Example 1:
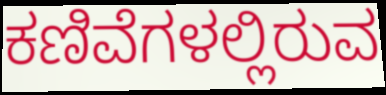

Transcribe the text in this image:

ಕಣಿವೆಗಳಲ್ಲಿರುವ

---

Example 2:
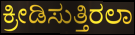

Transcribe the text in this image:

ಕ್ರೀಡಿಸುತ್ತಿರಲಾ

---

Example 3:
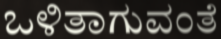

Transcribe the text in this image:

ಒಳಿತಾಗುವಂತೆ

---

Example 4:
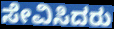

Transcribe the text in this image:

ಸೇವಿಸಿದರು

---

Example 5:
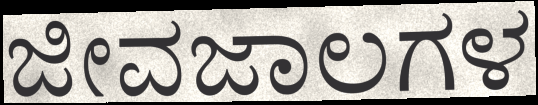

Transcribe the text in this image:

ಜೀವಜಾಲಗಳ